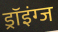
ड्रॉइंग्ज